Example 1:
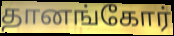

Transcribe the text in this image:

தானங்கோர்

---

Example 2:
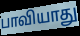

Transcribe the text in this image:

பாவியாது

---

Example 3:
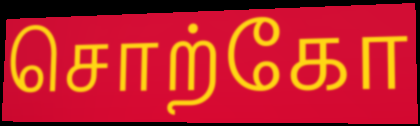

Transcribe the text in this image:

சொற்கோ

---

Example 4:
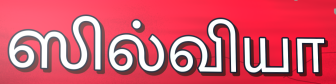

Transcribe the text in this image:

ஸில்வியா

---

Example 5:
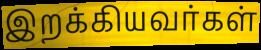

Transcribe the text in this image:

இறக்கியவர்கள்